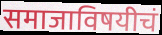
समाजाविषयीचं